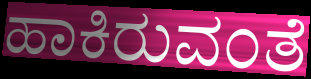
ಹಾಕಿರುವಂತೆ